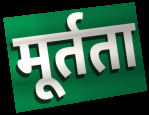
मूर्तता